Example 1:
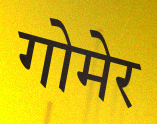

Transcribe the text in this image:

गोमेर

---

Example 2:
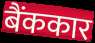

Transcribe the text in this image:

बैंककार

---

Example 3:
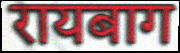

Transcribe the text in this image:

रायबाग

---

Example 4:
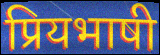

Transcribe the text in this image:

प्रियभाषी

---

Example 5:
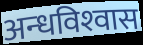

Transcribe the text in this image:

अन्‍धविश्‍वास